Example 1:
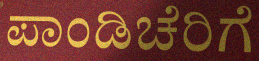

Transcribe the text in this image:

ಪಾಂಡಿಚೆರಿಗೆ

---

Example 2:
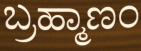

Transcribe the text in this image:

ಬ್ರಹ್ಮಾಣಂ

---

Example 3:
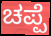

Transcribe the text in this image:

ಚಪ್ಪೆ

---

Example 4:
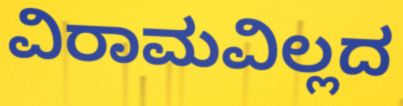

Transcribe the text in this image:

ವಿರಾಮವಿಲ್ಲದ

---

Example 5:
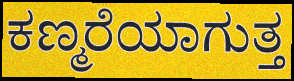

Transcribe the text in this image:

ಕಣ್ಮರೆಯಾಗುತ್ತ